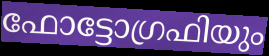
ഫോട്ടോഗ്രഫിയും